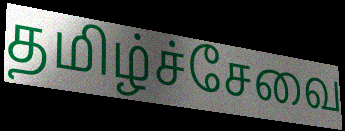
தமிழ்ச்சேவை